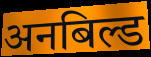
अनबिल्ड